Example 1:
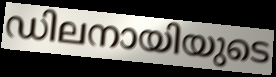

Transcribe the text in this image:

ഡിലനായിയുടെ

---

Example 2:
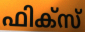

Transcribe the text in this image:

ഫിക്സ്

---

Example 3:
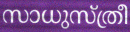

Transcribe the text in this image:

സാധുസ്ത്രീ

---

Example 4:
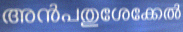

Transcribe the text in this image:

അൻപതുശേക്കേൽ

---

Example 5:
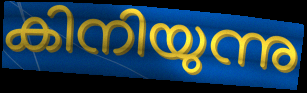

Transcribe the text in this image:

കിനിയുന്നു